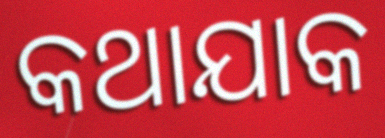
କଥାଯାକ